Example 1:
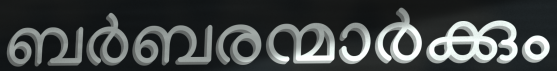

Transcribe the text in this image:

ബർബരന്മാർക്കും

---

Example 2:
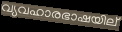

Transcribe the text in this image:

വ്യവഹാരഭാഷയില്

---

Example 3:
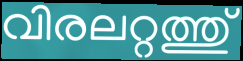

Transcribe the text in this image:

വിരലറ്റത്തു്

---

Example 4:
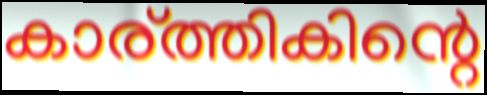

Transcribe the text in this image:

കാര്ത്തികിന്റെ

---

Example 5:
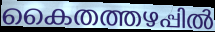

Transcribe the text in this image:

കൈതത്തഴപ്പിൽ